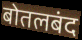
बोतलबंद